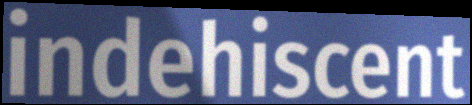
indehiscent